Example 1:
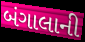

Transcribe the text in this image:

બંગાલાની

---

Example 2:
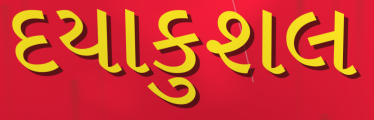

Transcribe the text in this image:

દયાકુશલ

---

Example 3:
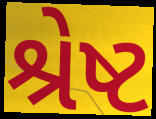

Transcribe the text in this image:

શ્રેષ્ટ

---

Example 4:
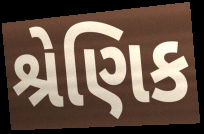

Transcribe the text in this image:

શ્રેણિક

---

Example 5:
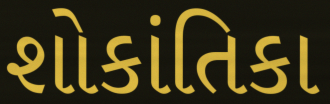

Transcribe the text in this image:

શોકાંતિકા